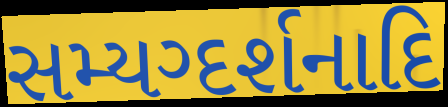
સમ્યગ્દર્શનાદિ